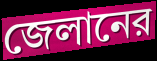
জেলানের